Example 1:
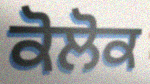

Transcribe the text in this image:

ਕੋਲੋਕ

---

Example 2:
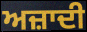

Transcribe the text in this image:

ਅਜ਼ਾਦੀ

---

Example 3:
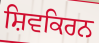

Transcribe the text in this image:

ਸ਼ਿਵਕਿਰਨ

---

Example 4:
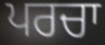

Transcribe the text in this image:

ਪਰਚਾ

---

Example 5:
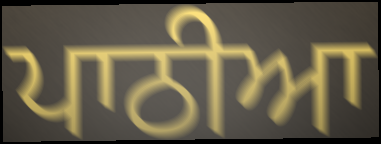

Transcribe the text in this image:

ਪਾਠੀਆ